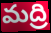
మద్రి